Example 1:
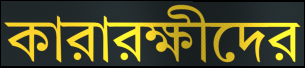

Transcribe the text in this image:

কারারক্ষীদের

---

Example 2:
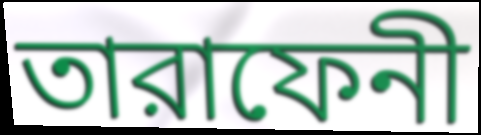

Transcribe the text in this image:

তারাফেনী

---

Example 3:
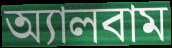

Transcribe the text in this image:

অ্যালবাম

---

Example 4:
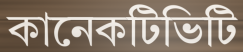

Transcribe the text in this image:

কানেকটিভিটি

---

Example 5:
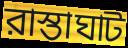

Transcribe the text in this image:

রাস্তাঘাট